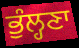
ਭੁੰਲ੍ਹਣਾ